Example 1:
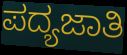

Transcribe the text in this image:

ಪದ್ಯಜಾತಿ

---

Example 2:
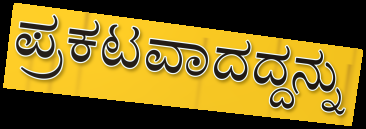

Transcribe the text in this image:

ಪ್ರಕಟವಾದದ್ದನ್ನು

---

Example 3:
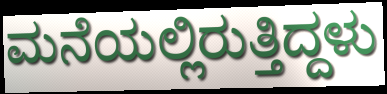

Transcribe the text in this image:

ಮನೆಯಲ್ಲಿರುತ್ತಿದ್ದಳು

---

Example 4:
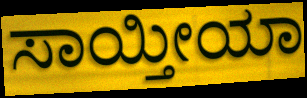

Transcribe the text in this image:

ಸಾಯ್ತೀಯಾ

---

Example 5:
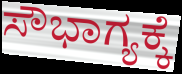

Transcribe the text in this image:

ಸೌಭಾಗ್ಯಕ್ಕೆ